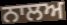
ਨਾਲਅ